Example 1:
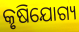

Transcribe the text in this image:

କୃଷିଯୋଗ୍ୟ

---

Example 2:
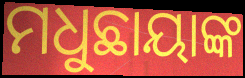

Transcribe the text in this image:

ମଧୁଛାୟାଙ୍କ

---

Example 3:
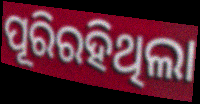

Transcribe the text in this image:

ପୂରିରହିଥିଲା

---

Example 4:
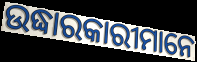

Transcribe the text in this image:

ଉଦ୍ଧାରକାରୀମାନେ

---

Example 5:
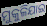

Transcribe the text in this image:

ମୁକୁଳିଯାଇ